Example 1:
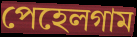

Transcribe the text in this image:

পেহেলগাম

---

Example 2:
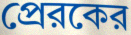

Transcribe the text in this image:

প্রেরকের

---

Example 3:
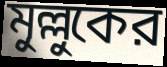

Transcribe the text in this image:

মুল্লুকের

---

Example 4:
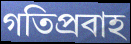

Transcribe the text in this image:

গতিপ্রবাহ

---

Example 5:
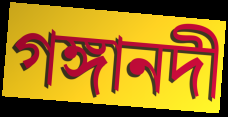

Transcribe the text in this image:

গঙ্গানদী